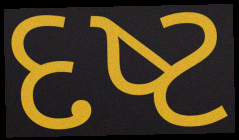
દષ્ટ